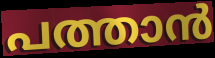
പത്താൻ